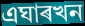
এঘাৰখন